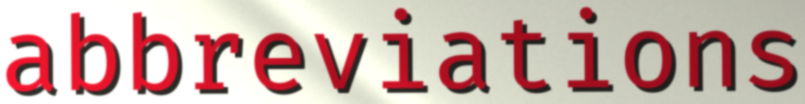
abbreviations